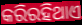
କରିରହିଥାଏ